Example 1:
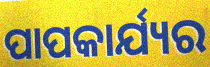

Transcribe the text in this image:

ପାପକାର୍ଯ୍ୟର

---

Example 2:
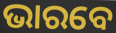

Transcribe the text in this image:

ଭାରବେ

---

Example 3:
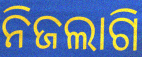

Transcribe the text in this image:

ନିଜଲାଗି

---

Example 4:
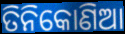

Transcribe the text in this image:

ତିନିକୋଣିଆ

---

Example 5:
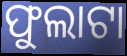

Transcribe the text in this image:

ଫୁଲାଟା